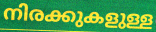
നിരക്കുകളുള്ള